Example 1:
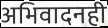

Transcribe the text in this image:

अभिवादनही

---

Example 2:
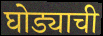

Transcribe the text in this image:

घोड्याची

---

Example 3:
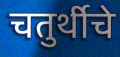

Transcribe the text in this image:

चतुर्थीचे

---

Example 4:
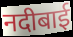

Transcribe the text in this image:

नदीबाई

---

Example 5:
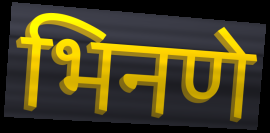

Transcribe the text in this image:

भिनणे